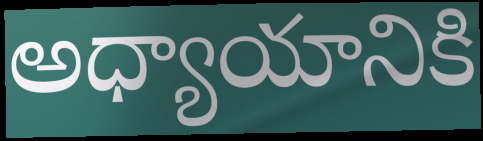
అధ్యాయానికి